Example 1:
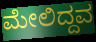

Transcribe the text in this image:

ಮೇಲಿದ್ದವ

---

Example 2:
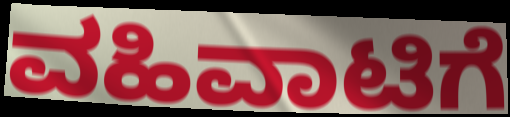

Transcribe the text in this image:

ವಹಿವಾಟಿಗೆ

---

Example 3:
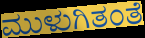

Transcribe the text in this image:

ಮುಳುಗಿತಂತೆ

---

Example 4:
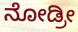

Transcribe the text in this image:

ನೋಡ್ರೀ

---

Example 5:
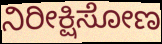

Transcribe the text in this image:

ನಿರೀಕ್ಷಿಸೋಣ